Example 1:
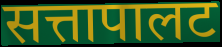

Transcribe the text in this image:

सत्तापालट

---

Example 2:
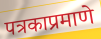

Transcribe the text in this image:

पत्रकाप्रमाणे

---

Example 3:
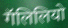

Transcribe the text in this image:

गॅलिलियो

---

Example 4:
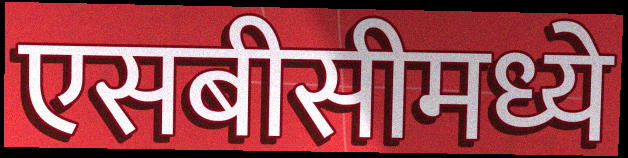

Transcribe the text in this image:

एसबीसीमध्ये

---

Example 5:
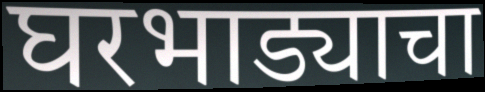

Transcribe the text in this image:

घरभाड्याचा